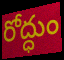
రోద్ధుం